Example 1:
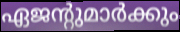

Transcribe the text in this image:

ഏജന്റുമാർക്കും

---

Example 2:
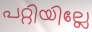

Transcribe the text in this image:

പറ്റിയില്ലേ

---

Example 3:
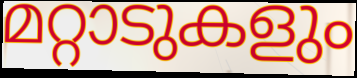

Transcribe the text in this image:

മറ്റാടുകളും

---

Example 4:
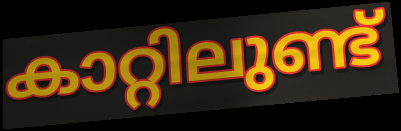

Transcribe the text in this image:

കാറ്റിലുണ്ട്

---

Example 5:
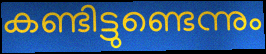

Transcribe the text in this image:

കണ്ടിട്ടുണ്ടെന്നും